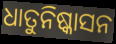
ଧାତୁନିଷ୍କାସନ